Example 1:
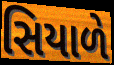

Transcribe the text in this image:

સિયાળે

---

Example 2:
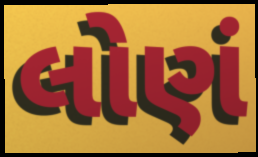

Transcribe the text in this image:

લોણં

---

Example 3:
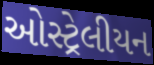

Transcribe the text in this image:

ઓસ્ટ્રેલીયન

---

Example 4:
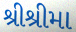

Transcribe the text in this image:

શ્રીશ્રીમા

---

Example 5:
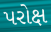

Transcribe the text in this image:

પરોક્ષ